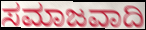
ಸಮಾಜವಾದಿ